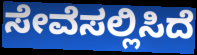
ಸೇವೆಸಲ್ಲಿಸಿದೆ